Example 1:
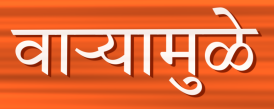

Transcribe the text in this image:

वाऱ्यामुळे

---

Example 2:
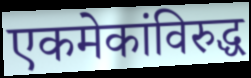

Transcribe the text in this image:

एकमेकांविरुद्ध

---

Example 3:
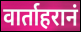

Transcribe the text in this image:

वार्ताहरानं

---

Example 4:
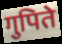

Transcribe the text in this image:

गुपिते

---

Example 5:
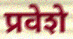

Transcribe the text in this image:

प्रवेशे